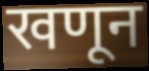
खणून